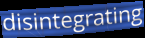
disintegrating